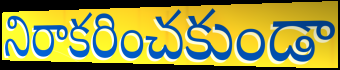
నిరాకరించకుండా